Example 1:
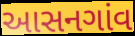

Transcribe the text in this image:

આસનગાંવ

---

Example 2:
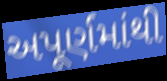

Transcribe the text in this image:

અપૂર્ણમાંથી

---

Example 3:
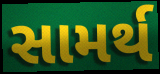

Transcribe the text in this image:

સામર્થ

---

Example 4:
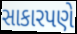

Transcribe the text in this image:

સાકારપણે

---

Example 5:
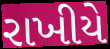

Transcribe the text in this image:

રાખીયે